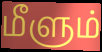
மீளும்